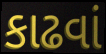
કાઢવાં